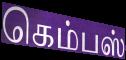
கெம்பஸ்